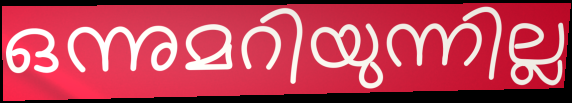
ഒന്നുമറിയുന്നില്ല